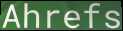
Ahrefs